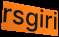
rsgiri